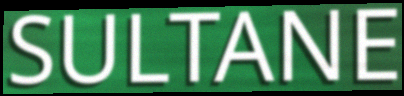
SULTANE